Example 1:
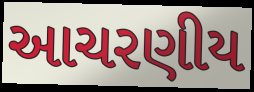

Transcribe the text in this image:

આચરણીય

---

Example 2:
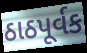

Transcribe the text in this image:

ઠાઠપૂર્વક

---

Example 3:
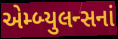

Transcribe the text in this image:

એમ્બ્યુલન્સનાં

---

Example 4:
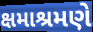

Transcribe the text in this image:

ક્ષમાશ્રમણે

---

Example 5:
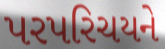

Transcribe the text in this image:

પરપરિચયને